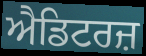
ਐਡਿਟਰਜ਼